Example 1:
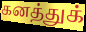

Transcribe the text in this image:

கனத்துக்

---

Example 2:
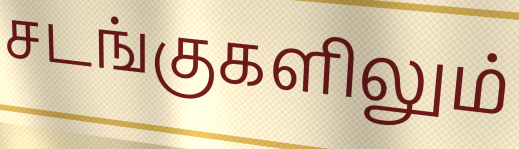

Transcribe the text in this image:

சடங்குகளிலும்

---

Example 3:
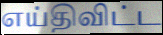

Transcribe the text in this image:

எய்திவிட்ட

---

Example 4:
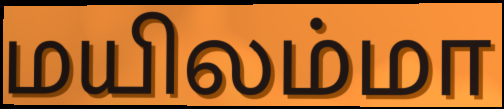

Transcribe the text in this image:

மயிலம்மா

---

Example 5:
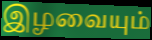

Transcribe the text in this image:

இழவையும்